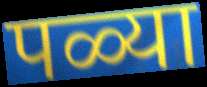
पळ्या